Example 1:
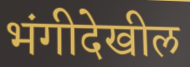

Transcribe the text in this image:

भंगीदेखील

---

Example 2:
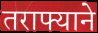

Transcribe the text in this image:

तराफ्याने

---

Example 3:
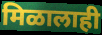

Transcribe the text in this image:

मिळालाही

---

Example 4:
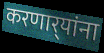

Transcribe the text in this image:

करणार्‍यांना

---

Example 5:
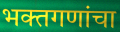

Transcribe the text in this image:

भक्तगणांचा